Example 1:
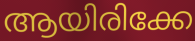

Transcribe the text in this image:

ആയിരിക്കേ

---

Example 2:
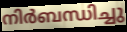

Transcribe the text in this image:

നിർബന്ധിച്ചു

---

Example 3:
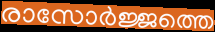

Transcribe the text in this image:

രാസോർജ്ജത്തെ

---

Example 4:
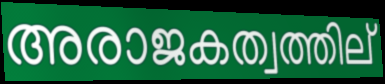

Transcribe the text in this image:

അരാജകത്വത്തില്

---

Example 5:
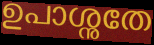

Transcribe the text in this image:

ഉപാശ്നുതേ